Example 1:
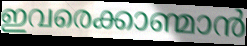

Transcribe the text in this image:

ഇവരെക്കാണ്മാൻ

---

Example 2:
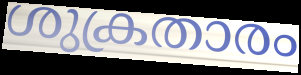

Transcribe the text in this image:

ശുക്രതാരം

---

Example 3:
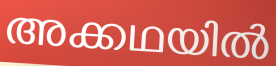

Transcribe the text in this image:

അക്കഥയിൽ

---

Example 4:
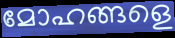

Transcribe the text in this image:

മോഹങ്ങളെ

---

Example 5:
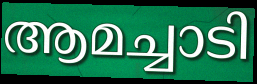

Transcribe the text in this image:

ആമച്ചാടി